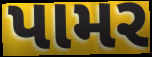
પામર